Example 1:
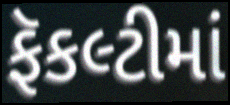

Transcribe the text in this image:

ફૅકલ્ટીમાં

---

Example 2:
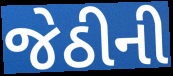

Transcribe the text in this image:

જેઠીની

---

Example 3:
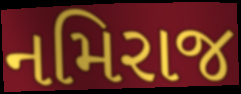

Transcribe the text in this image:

નમિરાજ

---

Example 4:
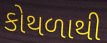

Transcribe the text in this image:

કોથળાથી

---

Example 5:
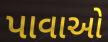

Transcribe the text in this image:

પાવાઓ